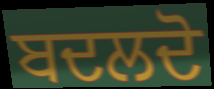
ਬਦਲਦੋ